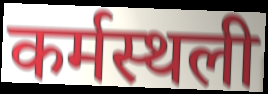
कर्मस्थली